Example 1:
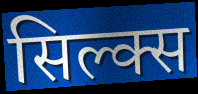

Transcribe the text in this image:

सिल्क्स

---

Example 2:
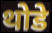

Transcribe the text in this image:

थोडे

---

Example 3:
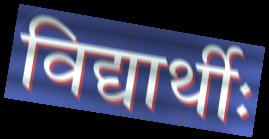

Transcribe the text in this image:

विद्यार्थीः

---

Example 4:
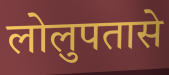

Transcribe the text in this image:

लोलुपतासे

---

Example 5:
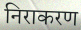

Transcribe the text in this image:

निराकरण